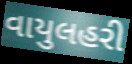
વાયુલહરી